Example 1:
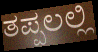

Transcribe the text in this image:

ತಪ್ಪಲಲ್ಲಿ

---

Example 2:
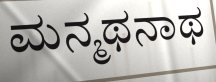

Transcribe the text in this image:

ಮನ್ಮಥನಾಥ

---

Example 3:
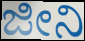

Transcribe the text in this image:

ಜೀನಿ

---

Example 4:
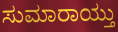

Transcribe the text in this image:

ಸುಮಾರಾಯ್ತು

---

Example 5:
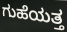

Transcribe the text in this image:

ಗುಹೆಯತ್ತ